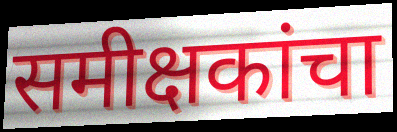
समीक्षकांचा